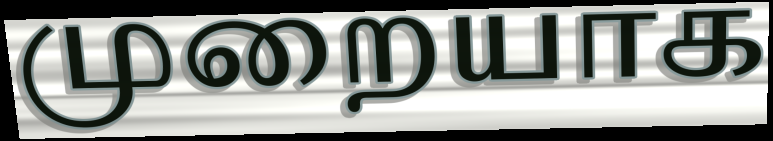
முறையாக